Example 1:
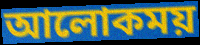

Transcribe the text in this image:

আলোকময়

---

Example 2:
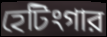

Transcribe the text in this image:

হেটিংগার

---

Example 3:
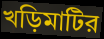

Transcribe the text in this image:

খড়িমাটির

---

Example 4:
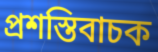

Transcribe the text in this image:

প্রশস্তিবাচক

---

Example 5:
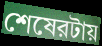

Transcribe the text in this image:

শেষেরটায়